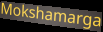
Mokshamarga